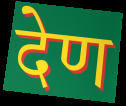
देण